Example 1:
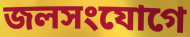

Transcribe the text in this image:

জলসংযোগে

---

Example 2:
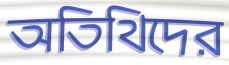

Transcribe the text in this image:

অতিথিদের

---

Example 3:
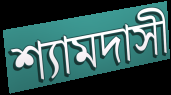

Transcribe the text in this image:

শ্যামদাসী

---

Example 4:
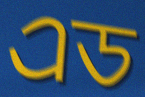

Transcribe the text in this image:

এড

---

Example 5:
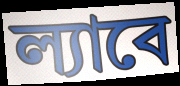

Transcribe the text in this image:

ল্যাবে